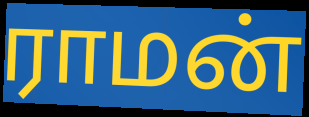
ராமன்